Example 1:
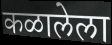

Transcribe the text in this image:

कळालेला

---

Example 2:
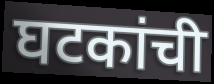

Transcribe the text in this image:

घटकांची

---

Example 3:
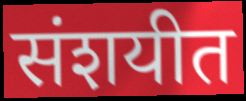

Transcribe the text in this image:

संशयीत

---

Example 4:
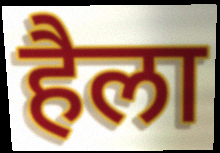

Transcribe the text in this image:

हैला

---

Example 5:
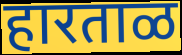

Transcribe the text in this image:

हारताळ